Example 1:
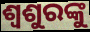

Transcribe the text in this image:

ଶ୍ୱଶୁରଙ୍କୁ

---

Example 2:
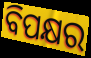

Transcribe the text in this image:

ବିପକ୍ଷର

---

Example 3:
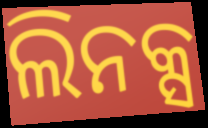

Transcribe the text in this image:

ଲିନକ୍ସ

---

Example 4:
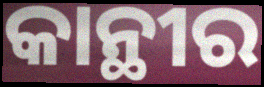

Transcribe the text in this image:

କାନ୍ଥୀର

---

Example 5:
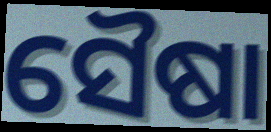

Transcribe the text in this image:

ସୈଷା